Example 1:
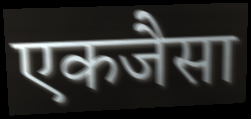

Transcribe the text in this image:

एकजैसा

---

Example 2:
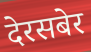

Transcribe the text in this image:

देरसबेर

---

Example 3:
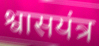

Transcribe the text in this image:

श्वासयंत्र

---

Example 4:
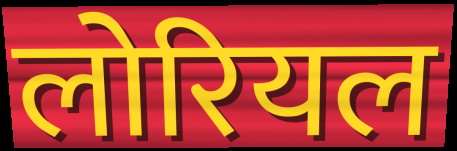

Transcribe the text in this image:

लोरियल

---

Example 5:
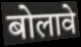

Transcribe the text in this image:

बोलावे